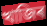
খাজিৰ